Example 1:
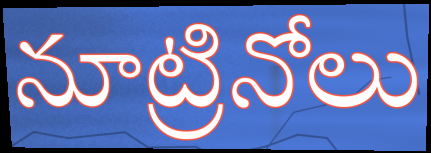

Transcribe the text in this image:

నూట్రినోలు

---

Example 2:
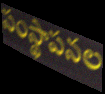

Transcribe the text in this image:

సంస్థాపనల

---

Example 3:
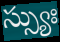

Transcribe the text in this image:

స్స్యుః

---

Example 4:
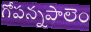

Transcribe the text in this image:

గోపన్నపాలెం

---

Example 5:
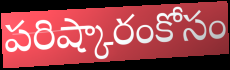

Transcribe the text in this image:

పరిష్కారంకోసం